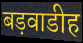
बड़वाडीह